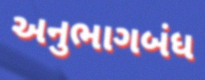
અનુભાગબંધ